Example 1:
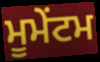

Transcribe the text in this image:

ਮੂਮੇਂਟਮ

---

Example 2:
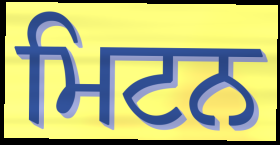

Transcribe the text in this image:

ਮਿਟਨ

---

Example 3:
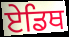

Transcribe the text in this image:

ਏਡਿਥ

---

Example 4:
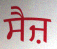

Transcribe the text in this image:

ਸੈਜ਼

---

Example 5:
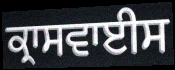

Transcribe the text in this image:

ਕ੍ਰਾਸਵਾਈਸ